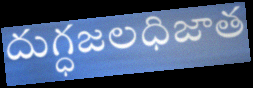
దుగ్ధజలధిజాత